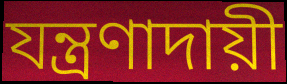
যন্ত্রণাদায়ী